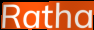
Ratha